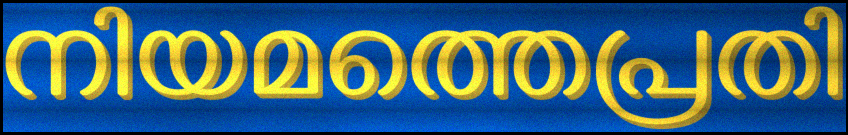
നിയമത്തെപ്രതി